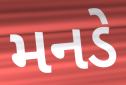
મનડે